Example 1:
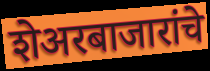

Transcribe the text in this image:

शेअरबाजारांचे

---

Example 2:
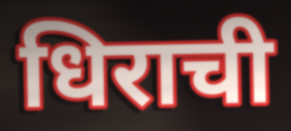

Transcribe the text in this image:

धिराची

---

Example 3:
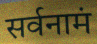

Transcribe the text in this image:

सर्वनामं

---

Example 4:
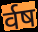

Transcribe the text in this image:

र्वष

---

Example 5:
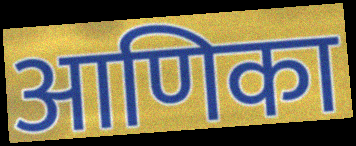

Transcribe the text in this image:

आणिका